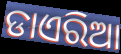
ଡାଏରିଆ